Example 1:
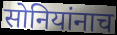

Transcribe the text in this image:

सोनियांनाच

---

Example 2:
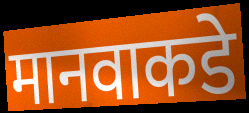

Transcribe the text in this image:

मानवाकडे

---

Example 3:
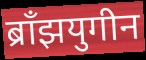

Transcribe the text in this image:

ब्राँझयुगीन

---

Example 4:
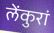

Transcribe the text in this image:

लेंकुरां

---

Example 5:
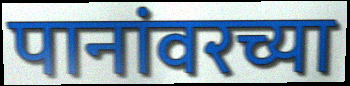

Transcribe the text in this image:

पानांवरच्या